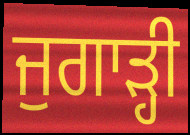
ਜੁਗਾੜ੍ਹੀ